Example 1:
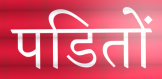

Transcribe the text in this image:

पडितों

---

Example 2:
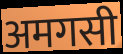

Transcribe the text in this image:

अमगसी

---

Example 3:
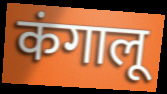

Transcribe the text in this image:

कंगालू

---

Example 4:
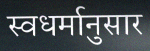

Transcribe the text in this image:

स्वधर्मानुसार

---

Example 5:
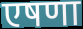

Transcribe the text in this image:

एषणा